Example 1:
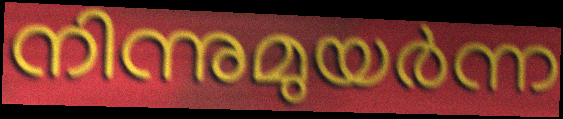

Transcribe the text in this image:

നിന്നുമുയർന്ന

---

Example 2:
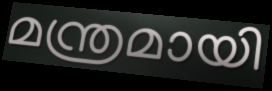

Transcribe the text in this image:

മന്ത്രമായി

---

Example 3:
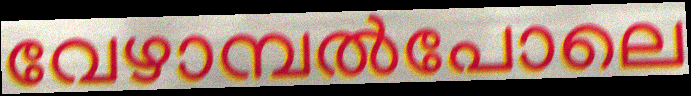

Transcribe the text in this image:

വേഴാമ്പൽപോലെ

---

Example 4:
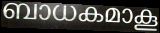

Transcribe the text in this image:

ബാധകമാകൂ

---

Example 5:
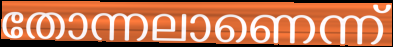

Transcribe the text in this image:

തോന്നലാണെന്ന്